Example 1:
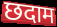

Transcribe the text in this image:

छदाम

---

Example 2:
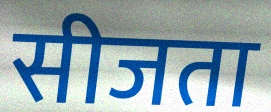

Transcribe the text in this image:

सीजता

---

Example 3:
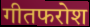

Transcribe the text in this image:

गीतफरोश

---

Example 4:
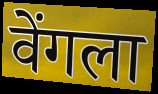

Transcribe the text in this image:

वेंगला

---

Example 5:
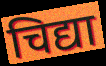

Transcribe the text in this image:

चिद्या